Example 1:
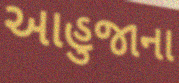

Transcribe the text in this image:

આહુજાના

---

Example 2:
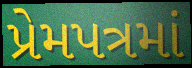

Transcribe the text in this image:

પ્રેમપત્રમાં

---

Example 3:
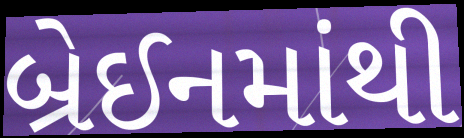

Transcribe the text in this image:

બ્રેઈનમાંથી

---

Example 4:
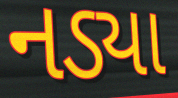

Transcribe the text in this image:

નડ્યા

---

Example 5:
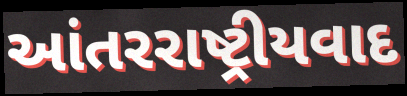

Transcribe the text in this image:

આંતરરાષ્ટ્રીયવાદ